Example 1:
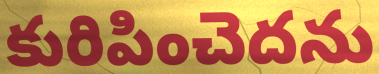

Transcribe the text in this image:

కురిపించెదను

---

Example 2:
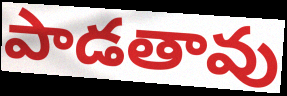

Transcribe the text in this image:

పాడతావు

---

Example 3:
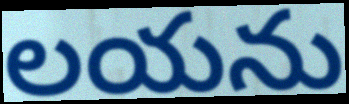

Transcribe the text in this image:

లయను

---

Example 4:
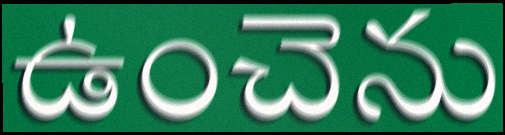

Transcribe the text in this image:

ఉంచెను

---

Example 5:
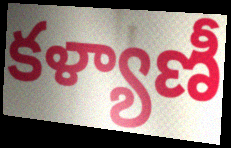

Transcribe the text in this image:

కళ్యాణీ